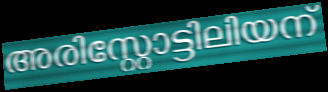
അരിസ്റ്റോട്ടിലിയന്